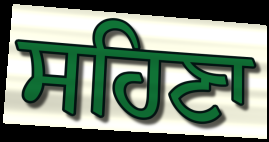
ਸਹਿਣਾ